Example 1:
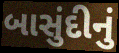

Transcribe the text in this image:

બાસુંદીનું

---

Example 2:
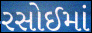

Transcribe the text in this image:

રસોઈમાં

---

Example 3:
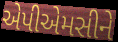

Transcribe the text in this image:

એપીએમસીને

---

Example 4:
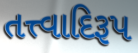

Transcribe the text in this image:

તત્ત્વાદિરૂપ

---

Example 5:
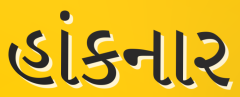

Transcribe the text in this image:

હાંકનાર